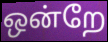
ஒன்றே